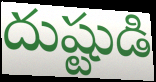
దుష్టుడి